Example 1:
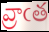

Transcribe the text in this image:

వ్రాఁత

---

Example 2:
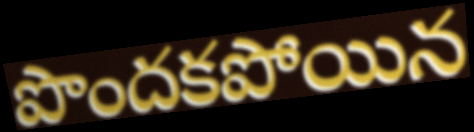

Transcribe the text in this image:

పొందకపోయిన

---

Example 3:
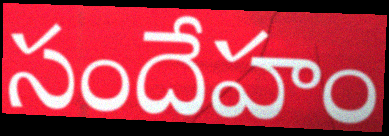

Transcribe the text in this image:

సందేహం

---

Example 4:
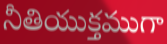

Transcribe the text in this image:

నీతియుక్తముగా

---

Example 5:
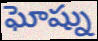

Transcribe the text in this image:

ఘోష్ను